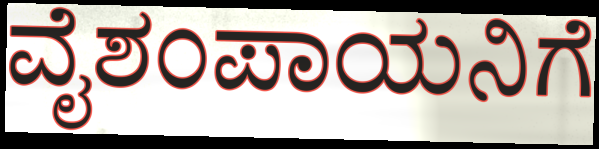
ವೈಶಂಪಾಯನಿಗೆ